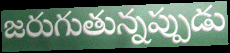
జరుగుతున్నప్పుడు